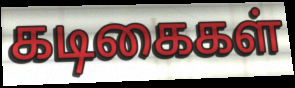
கடிகைகள்